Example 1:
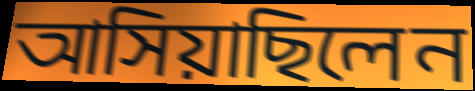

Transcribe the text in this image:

আসিয়াছিলেন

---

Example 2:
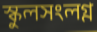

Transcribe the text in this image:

স্কুলসংলগ্ন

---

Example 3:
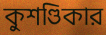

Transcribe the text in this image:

কুশণ্ডিকার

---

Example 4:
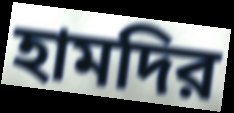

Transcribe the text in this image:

হামদির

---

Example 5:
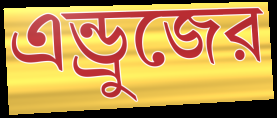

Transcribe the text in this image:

এন্ড্রুজের